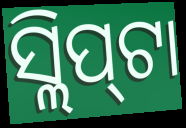
ସ୍ଲିପ୍‌ଟା